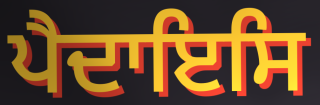
ਪੈਦਾਇਸਿ